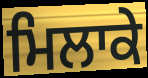
ਮਿਲਾਕੇ